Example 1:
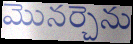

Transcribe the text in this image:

మొనర్చెను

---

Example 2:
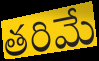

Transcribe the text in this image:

తరిమే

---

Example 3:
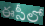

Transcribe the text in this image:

ఈసీలో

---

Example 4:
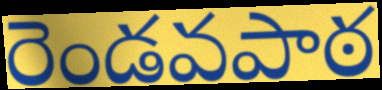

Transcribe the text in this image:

రెండవపాఠ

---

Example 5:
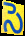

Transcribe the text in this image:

సె